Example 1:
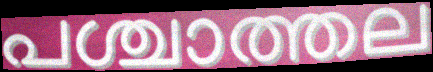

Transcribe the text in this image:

പശ്ചാത്തല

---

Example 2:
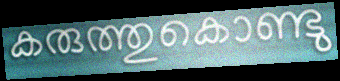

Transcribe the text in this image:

കരുത്തുകൊണ്ടു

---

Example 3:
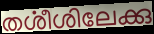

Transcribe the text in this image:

തൎശീശിലേക്കു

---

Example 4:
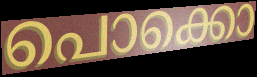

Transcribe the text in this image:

പൊക്കൊ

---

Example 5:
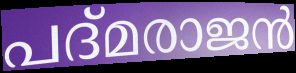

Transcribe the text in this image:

പദ്മരാജൻ